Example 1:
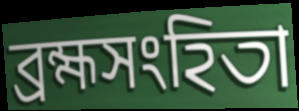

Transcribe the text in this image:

ব্রহ্মসংহিতা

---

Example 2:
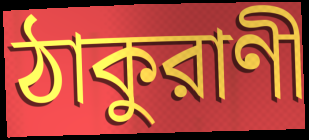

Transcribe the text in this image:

ঠাকুরাণী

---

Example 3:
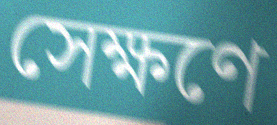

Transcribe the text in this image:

সেক্ষণে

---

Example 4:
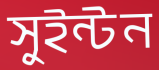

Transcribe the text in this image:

সুইন্টন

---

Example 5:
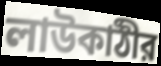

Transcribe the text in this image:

লাউকাঠীর